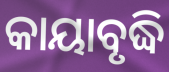
କାୟାବୃଦ୍ଧି